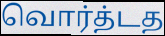
வொர்த்டத